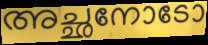
അച്ഛനോടോ